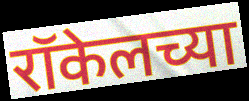
रॉकेलच्या